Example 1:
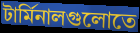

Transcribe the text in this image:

টার্মিনালগুলোতে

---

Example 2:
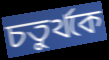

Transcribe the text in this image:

চতুর্থকে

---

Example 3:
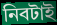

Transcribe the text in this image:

নিবটাই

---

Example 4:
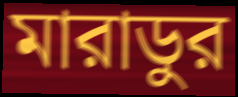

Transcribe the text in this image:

মারাডুর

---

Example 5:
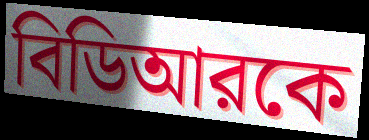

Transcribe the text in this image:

বিডিআরকে